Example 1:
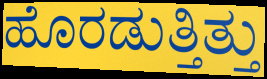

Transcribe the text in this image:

ಹೊರಡುತ್ತಿತ್ತು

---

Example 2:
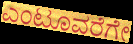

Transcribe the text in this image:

ಎಂಟೂವರೆಗೇ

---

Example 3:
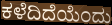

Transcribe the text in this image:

ಕಳೆದಿದೆಯೆಂದು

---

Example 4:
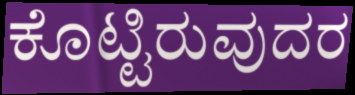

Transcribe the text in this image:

ಕೊಟ್ಟಿರುವುದರ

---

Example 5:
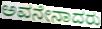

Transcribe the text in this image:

ಅವನೇನಾದರು